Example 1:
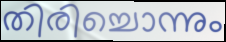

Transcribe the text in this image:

തിരിച്ചൊന്നും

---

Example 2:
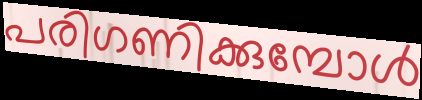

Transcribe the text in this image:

പരിഗണിക്കുമ്പോൾ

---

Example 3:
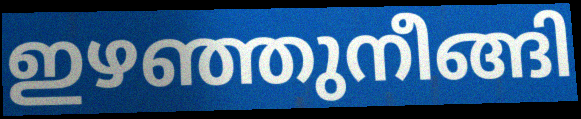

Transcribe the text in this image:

ഇഴഞ്ഞുനീങ്ങി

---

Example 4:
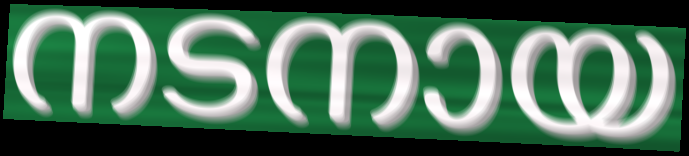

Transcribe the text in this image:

നടനായ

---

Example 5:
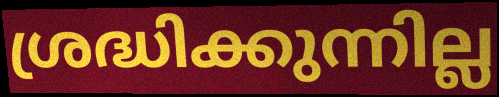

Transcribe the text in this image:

ശ്രദ്ധിക്കുന്നില്ല